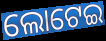
ଲୋଟେଇ